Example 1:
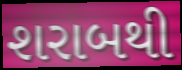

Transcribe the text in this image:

શરાબથી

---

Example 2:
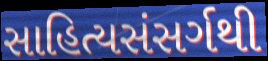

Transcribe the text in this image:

સાહિત્યસંસર્ગથી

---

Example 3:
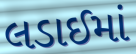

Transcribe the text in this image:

લડાઈમાં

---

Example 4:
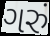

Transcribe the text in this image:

ગરું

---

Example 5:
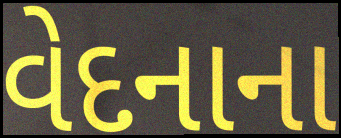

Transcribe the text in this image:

વેદનાના